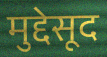
मुद्देसूद